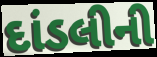
દાંડલીની